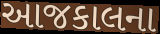
આજકાલના